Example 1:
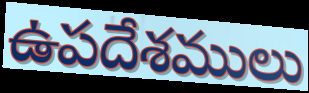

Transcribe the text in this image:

ఉపదేశములు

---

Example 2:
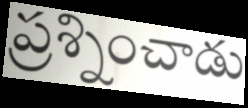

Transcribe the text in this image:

ప్రశ్నించాడు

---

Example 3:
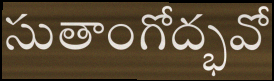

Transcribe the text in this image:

సుతాంగోద్భవో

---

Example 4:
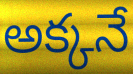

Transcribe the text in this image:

అక్కనే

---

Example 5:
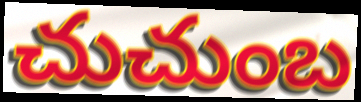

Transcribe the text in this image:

చుచుంబ